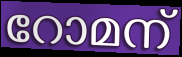
റോമന്